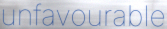
unfavourable